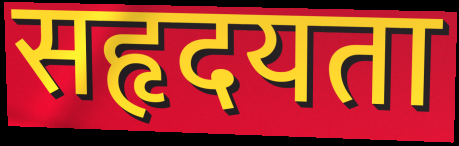
सहृदयता